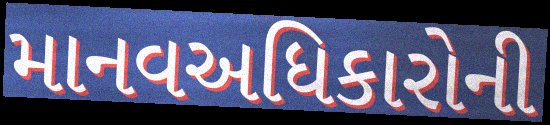
માનવઅધિકારોની